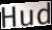
Hud